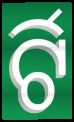
ର୍ଟି